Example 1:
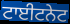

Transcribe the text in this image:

ਟਾਈਟਨੇਟ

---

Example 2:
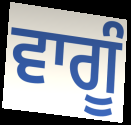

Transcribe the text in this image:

ਵਾਗੂੰ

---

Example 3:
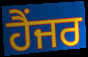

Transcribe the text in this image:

ਹੈਂਜਰ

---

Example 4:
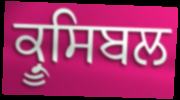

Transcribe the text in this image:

ਕ੍ਰੂਸਿਬਲ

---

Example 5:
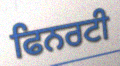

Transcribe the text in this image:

ਫਿਨਰਟੀ